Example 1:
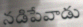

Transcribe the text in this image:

నడిపేవాడు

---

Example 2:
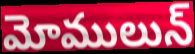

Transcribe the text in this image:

మోములున్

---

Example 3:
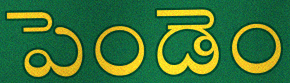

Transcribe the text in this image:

పెండెం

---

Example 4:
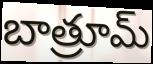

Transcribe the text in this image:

బాత్రూమ్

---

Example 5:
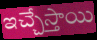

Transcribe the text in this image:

ఇచ్చేస్తాయి